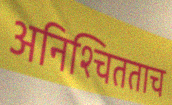
अनिश्चितताच